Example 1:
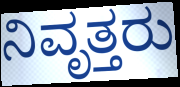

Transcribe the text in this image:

ನಿವೃತ್ತರು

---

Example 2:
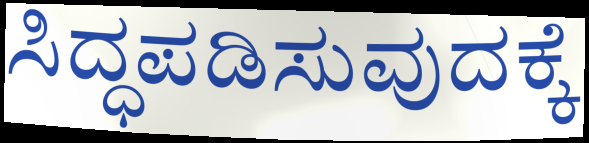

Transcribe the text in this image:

ಸಿದ್ಧಪಡಿಸುವುದಕ್ಕೆ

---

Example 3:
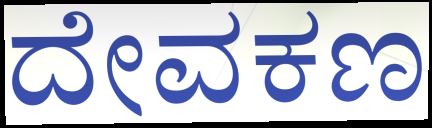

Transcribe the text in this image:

ದೇವಕಣ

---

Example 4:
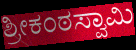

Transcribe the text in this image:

ಶ್ರೀಕಂಠಸ್ವಾಮಿ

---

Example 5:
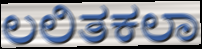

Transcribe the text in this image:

ಲಲಿತಕಲಾ